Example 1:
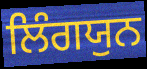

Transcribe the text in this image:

ਲਿੰਗਯੁਨ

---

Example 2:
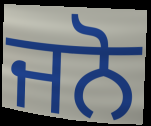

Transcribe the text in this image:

ਜਨੋ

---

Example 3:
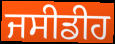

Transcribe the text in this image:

ਜਸੀਡੀਹ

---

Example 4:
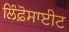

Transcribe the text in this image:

ਲਿੰਫ਼ੋਸਾਈਟ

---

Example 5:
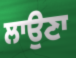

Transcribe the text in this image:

ਲਾਉਣਾ